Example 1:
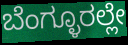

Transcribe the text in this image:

ಬೆಂಗ್ಳೂರಲ್ಲೇ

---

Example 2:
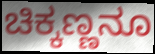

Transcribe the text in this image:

ಚಿಕ್ಕಣ್ಣನೂ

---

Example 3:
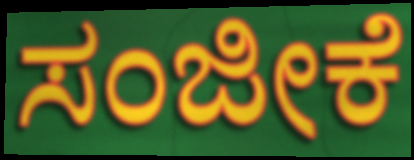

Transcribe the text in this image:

ಸಂಜೀಕೆ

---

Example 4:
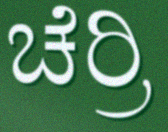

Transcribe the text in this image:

ಚೆರ‍್ರಿ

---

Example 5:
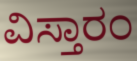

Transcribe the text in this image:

ವಿಸ್ತಾರಂ